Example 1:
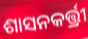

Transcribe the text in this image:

ଶାସନକର୍ତ୍ତ୍ରୀ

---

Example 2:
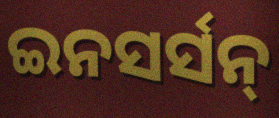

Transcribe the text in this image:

ଇନସର୍ସନ୍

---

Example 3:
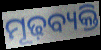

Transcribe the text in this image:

ମୂଢ଼ବ୍ୟକ୍ତି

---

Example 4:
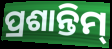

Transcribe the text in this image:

ପ୍ରଶାନ୍ତିମ୍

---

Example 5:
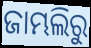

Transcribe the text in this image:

ଜାମ୍ଭଲିରୁ